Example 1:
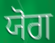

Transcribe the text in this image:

ਯੋਗ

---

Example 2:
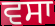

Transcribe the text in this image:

ਵਸਾ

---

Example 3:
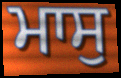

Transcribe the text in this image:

ਮਾਸੁ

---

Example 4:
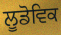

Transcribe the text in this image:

ਲੂਡੋਵਿਕ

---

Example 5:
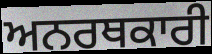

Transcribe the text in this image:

ਅਨਰਥਕਾਰੀ